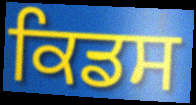
ਕਿਡਸ